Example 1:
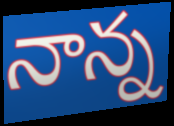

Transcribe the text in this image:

నాన్న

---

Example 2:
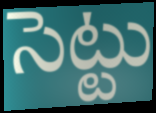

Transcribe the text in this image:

సెట్టు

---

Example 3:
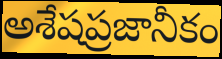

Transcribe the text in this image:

అశేషప్రజానీకం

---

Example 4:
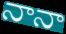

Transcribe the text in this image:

నానా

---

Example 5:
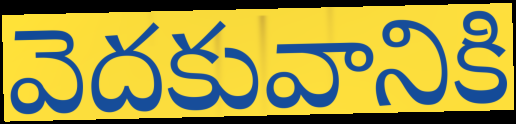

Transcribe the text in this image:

వెదకువానికి